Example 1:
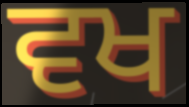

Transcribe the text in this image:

ਵਖ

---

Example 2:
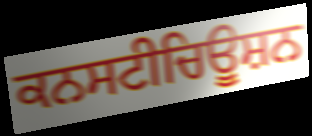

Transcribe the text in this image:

ਕਨਸਟੀਚਿਊਸ਼ਨ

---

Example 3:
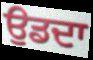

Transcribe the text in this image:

ਉਡਦਾ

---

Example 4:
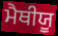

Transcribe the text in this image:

ਮੈਥੀਯੂ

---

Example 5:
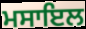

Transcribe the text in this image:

ਮਸਾਇਲ